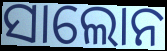
ସାଲୋନ